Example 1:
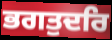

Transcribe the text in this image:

ਭਗਤੁਦਰਿ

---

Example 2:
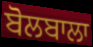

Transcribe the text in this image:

ਬੋਲਬਾਲਾ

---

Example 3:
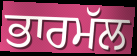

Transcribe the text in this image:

ਭਾਰਮੱਲ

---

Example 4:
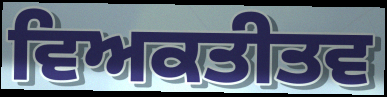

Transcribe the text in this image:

ਵਿਅਕਤੀਤਵ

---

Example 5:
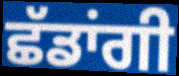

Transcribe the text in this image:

ਛੱਡਾਂਗੀ